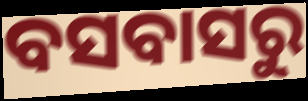
ବସବାସରୁ